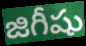
జిగీషు